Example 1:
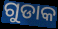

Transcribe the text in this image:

ଗୁଡାକ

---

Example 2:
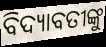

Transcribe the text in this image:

ବିଦ୍ୟାବତୀଙ୍କୁ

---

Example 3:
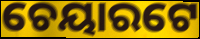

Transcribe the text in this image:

ଚେୟାରଟେ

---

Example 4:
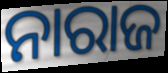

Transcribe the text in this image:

ନାରାଜ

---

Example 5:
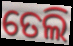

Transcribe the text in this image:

ତେଲି